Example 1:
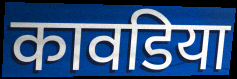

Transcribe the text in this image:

कावडिया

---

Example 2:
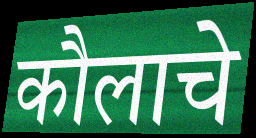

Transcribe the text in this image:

कौलाचे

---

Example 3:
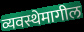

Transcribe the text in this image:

व्यवस्थेमागील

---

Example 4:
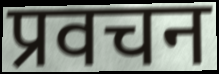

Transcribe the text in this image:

प्रवचन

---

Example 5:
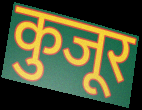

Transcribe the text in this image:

कुजूर